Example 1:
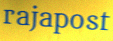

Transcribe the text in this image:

rajapost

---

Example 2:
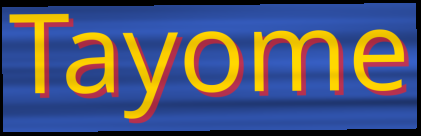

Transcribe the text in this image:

Tayome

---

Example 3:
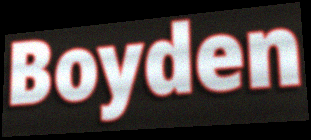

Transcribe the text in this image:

Boyden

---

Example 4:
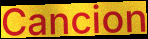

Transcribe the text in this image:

Cancion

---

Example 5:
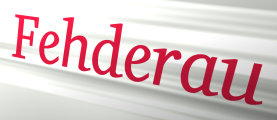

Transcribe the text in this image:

Fehderau